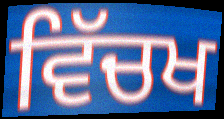
ਵਿੱਚਖ